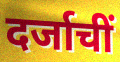
दर्जाचीं